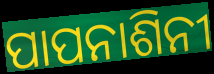
ପାପନାଶିନୀ